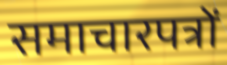
समाचारपत्रों